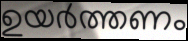
ഉയർത്തണം